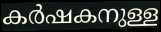
കർഷകനുള്ള